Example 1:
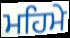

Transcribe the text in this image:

ਮਹਿਮੇ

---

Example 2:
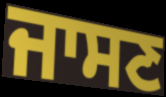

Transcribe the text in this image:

ਜਾਸਣ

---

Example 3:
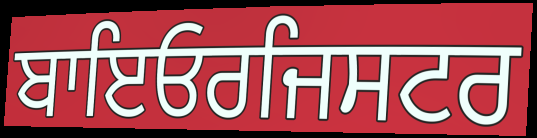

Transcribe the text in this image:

ਬਾਇਓਰਜਿਸਟਰ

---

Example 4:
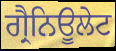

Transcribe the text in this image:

ਗ੍ਰੈਨਿਊਲੇਟ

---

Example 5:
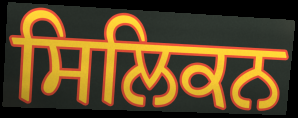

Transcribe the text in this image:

ਸਿਲਿਕਨ